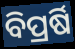
ବିପ୍ରର୍ଷି